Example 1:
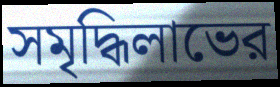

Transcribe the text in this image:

সমৃদ্ধিলাভের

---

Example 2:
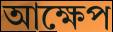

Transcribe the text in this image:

আক্ষেপ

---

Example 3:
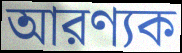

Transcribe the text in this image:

আরণ্যক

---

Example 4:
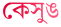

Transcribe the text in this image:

কেসুঙ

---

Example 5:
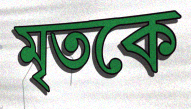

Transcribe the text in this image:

মৃতকে